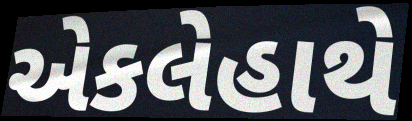
એકલેહાથે